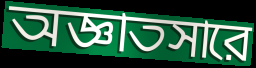
অজ্ঞাতসারে